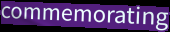
commemorating